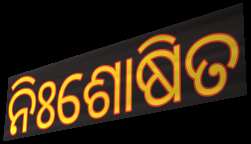
ନିଃଶୋଷିତ